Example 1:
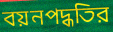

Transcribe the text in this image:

বয়নপদ্ধতির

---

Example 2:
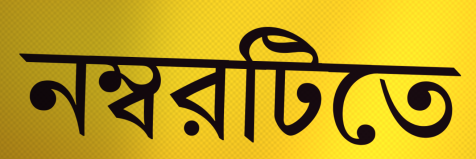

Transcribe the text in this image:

নম্বরটিতে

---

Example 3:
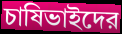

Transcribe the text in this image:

চাষিভাইদের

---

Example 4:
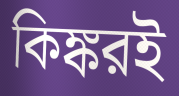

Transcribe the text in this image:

কিঙ্করই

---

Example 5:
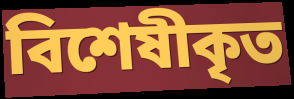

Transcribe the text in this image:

বিশেষীকৃত